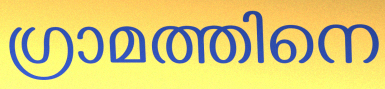
ഗ്രാമത്തിനെ